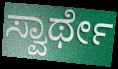
ಸ್ವಾರ್ಥೇ